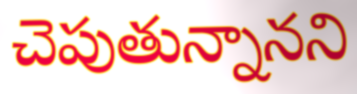
చెపుతున్నానని